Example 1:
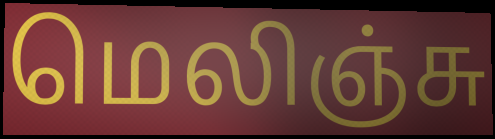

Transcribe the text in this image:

மெலிஞ்சு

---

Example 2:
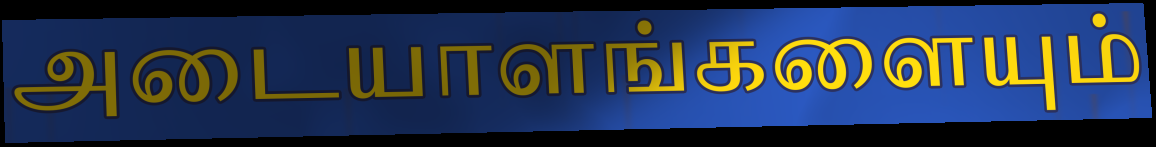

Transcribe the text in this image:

அடையாளங்களையும்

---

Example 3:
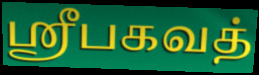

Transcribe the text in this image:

ஸ்ரீபகவத்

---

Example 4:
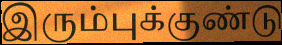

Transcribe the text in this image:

இரும்புக்குண்டு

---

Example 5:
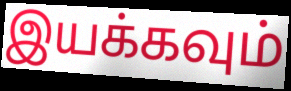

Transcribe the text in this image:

இயக்கவும்